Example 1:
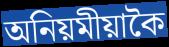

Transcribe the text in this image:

অনিয়মীয়াকৈ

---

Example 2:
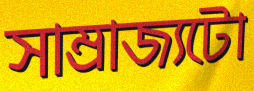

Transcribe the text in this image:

সাম্ৰাজ্যটো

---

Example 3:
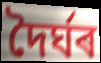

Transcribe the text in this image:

দৈৰ্ঘৰ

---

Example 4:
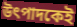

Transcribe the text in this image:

উৎপাদকেই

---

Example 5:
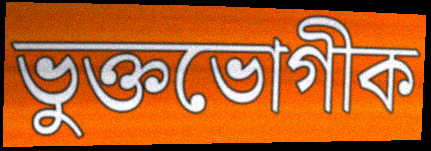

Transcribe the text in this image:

ভুক্তভোগীক